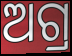
ଅଗ୍ର